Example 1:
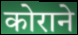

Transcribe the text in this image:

कोराने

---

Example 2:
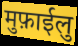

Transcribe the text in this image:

मुफ़ाईलु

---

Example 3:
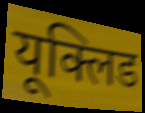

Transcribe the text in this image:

यूक्लिड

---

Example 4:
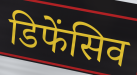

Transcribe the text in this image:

डिफेंसिव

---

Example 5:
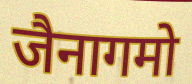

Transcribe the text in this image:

जैनागमो